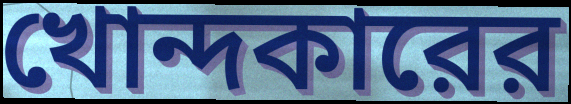
খোন্দকারের